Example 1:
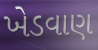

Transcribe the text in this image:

ખેડવાણ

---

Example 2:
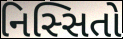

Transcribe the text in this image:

નિસ્સિતો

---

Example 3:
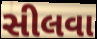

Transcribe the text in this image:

સીલવા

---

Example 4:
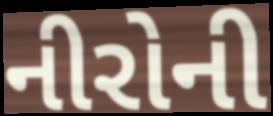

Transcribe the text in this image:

નીરોની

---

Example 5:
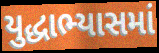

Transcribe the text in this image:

યુદ્ધાભ્યાસમાં